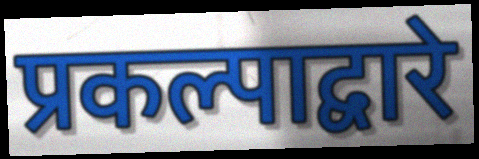
प्रकल्पाद्वारे